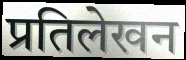
प्रतिलेखन